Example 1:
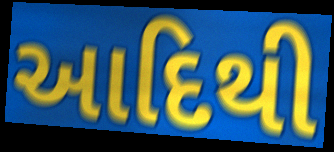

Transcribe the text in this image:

આદિથી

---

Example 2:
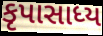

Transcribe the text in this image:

કૃપાસાધ્ય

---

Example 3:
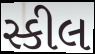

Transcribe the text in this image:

સ્કીલ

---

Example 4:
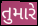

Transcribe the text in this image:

તુમારે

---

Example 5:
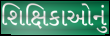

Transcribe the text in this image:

શિક્ષિકાઓનું